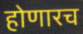
होणारच